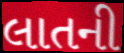
લાતની